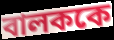
বালককে